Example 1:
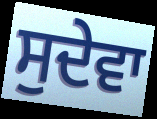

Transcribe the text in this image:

ਸੁਦੇਵਾ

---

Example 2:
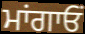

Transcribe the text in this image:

ਮਾਂਗਾਓਂ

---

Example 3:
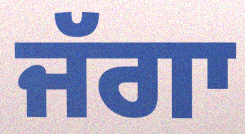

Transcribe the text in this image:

ਜੱਗਾ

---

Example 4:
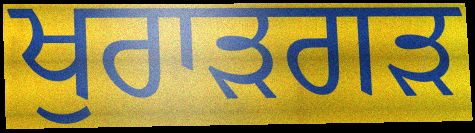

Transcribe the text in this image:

ਖੁਰਾੜਗੜ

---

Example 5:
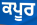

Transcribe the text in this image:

ਕਪੂਰ